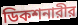
ডিকশনারীর